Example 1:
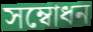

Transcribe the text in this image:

সম্বোধন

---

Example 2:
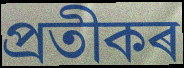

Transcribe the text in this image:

প্ৰতীকৰ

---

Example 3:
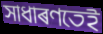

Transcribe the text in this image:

সাধাৰণতেই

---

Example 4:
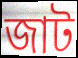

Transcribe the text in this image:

জাট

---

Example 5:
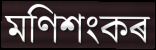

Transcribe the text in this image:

মণিশংকৰ